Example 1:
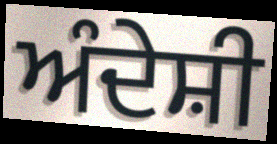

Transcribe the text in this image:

ਅੰਦੇਸ਼ੀ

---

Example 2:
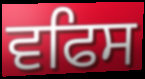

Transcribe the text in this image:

ਵਫਿਸ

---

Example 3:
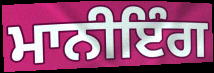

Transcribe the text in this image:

ਮਾਨੀਇੰਗ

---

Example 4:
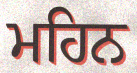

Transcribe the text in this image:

ਮਹਿਨ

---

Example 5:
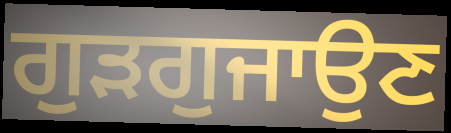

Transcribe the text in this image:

ਗੁੜਗੁਜਾਉਣ